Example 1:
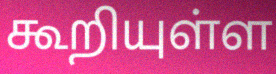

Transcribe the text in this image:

கூறியுள்ள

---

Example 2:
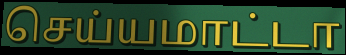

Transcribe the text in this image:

செய்யமாட்டா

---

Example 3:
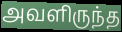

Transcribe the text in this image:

அவளிருந்த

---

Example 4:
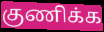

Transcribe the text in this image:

குணிக்க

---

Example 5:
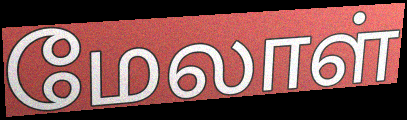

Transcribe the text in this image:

மேலாள்